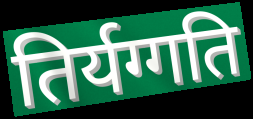
तिर्यग्गति